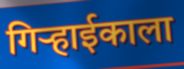
गिर्‍हाईकाला